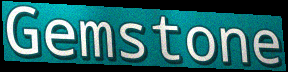
Gemstone